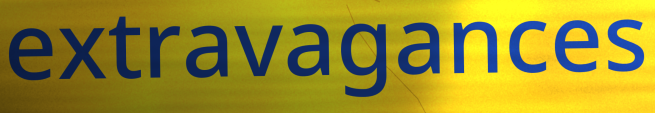
extravagances